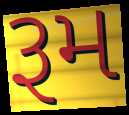
રૂમ